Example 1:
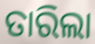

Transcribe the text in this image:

ତାରିଲା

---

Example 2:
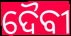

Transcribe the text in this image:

ଦୈବୀ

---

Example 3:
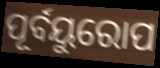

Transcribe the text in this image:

ପୂର୍ବୟୁରୋପ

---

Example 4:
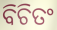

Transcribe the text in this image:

ବିଚିତଂ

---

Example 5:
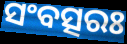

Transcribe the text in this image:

ସଂବତ୍ସରଃ